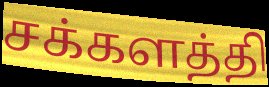
சக்களத்தி